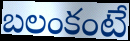
బలంకంటే